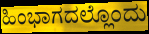
ಹಿಂಭಾಗದಲ್ಲೊಂದು